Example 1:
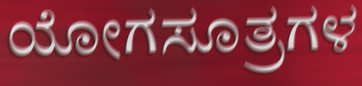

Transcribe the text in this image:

ಯೋಗಸೂತ್ರಗಳ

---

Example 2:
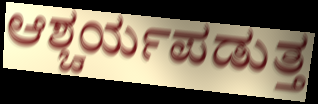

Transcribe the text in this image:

ಆಶ್ಚರ್ಯಪಡುತ್ತ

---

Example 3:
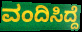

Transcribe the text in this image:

ವಂದಿಸಿದ್ದೆ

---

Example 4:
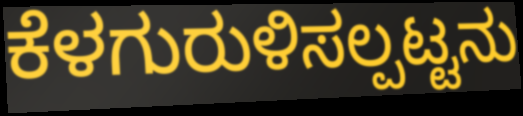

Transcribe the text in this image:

ಕೆಳಗುರುಳಿಸಲ್ಪಟ್ಟನು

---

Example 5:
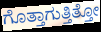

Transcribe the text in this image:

ಗೊತ್ತಾಗುತ್ತಿತ್ತೋ